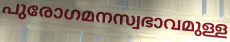
പുരോഗമനസ്വഭാവമുള്ള